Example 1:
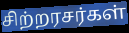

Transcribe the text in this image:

சிற்றரசர்கள்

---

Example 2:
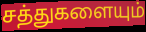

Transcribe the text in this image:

சத்துகளையும்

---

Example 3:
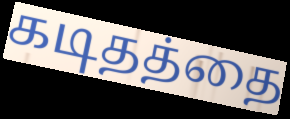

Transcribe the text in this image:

கடிதத்தை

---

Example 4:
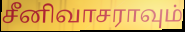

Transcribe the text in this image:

சீனிவாசராவும்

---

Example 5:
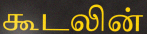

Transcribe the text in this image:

கூடலின்